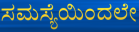
ಸಮಸ್ಯೆಯಿಂದಲೇ